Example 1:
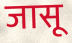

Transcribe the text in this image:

जासू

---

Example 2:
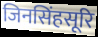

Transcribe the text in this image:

जिनसिंहसूरि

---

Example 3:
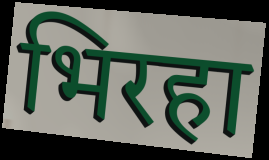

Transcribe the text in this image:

भिरहा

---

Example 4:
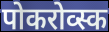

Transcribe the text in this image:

पोकरोव्स्क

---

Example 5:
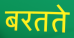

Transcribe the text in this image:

बरतते